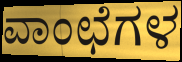
ವಾಂಛೆಗಳ